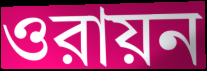
ওরায়ন